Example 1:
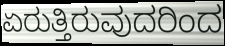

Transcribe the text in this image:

ಏರುತ್ತಿರುವುದರಿಂದ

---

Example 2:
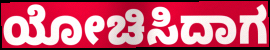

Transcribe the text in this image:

ಯೋಚಿಸಿದಾಗ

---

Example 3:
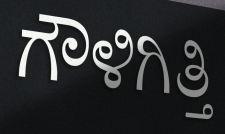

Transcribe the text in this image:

ಗೌಳಿಗಿತ್ತಿ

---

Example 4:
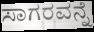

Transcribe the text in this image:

ಸಾಗರವನ್ನೆ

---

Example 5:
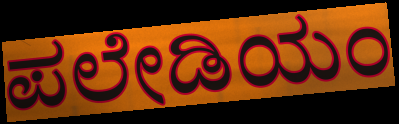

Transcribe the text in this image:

ಪಲೇಡಿಯಂ